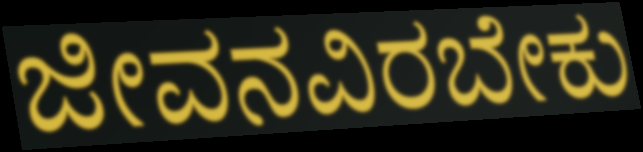
ಜೀವನವಿರಬೇಕು